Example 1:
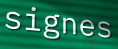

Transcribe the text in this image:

signes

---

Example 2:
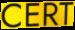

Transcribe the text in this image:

CERT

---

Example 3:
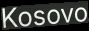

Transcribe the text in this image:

Kosovo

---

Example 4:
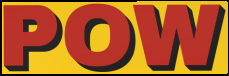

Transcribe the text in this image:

POW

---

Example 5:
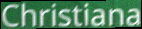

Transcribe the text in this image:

Christiana